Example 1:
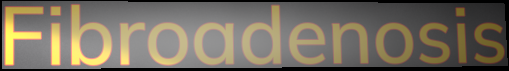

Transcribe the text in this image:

Fibroadenosis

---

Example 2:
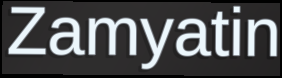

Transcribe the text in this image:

Zamyatin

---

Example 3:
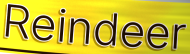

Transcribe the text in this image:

Reindeer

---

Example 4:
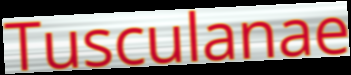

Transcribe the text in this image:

Tusculanae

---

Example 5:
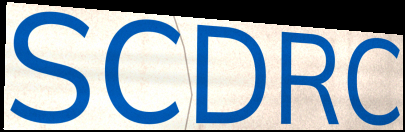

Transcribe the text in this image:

SCDRC